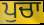
ਪੁਚਾ